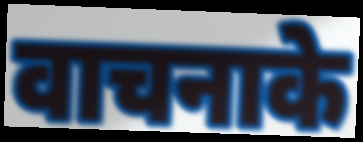
वाचनाके